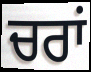
ਚਰਾਂ